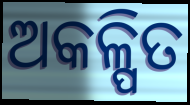
ଅକଳ୍ପିତ